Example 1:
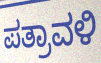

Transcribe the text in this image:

ಪತ್ರಾವಳಿ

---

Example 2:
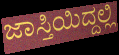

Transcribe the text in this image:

ಜಾಸ್ತಿಯಿದ್ದಲ್ಲಿ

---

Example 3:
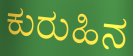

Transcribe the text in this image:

ಕುರುಹಿನ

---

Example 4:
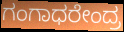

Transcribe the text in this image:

ಗಂಗಾಧರೇಂದ್ರ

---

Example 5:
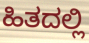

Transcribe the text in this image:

ಹಿತದಲ್ಲಿ